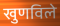
खुणविले